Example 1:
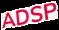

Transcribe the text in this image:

ADSP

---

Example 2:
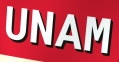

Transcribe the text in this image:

UNAM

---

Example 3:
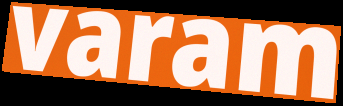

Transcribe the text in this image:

varam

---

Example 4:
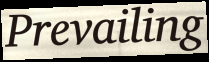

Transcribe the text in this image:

Prevailing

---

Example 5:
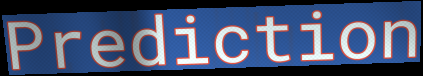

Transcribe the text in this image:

Prediction